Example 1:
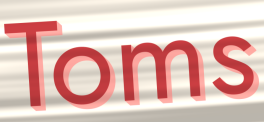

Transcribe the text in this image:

Toms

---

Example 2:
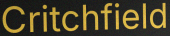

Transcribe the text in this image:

Critchfield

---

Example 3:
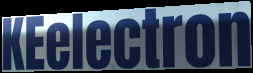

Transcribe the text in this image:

KEelectron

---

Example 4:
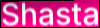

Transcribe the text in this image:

Shasta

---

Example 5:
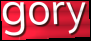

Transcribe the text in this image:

gory